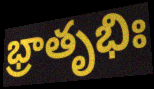
భ్రాతృభిః